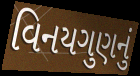
વિનયગુણનું